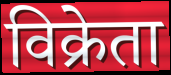
विक्रेता